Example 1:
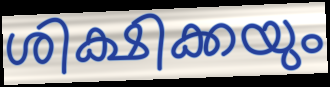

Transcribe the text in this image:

ശിക്ഷിക്കയും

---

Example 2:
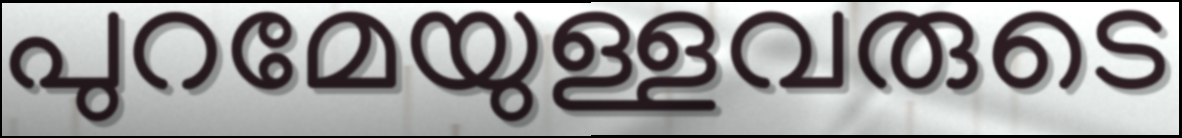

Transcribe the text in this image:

പുറമേയുള്ളവരുടെ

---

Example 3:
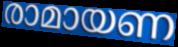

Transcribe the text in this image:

രാമായണ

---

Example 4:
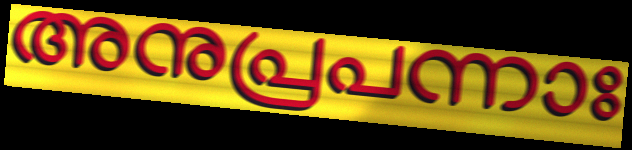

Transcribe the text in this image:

അനുപ്രപന്നാഃ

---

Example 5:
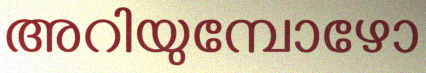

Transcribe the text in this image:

അറിയുമ്പോഴോ